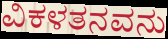
ವಿಕಳತನವನು